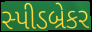
સ્પીડબ્રેકર